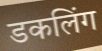
डकलिंग